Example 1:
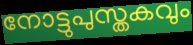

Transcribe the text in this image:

നോട്ടുപുസ്തകവും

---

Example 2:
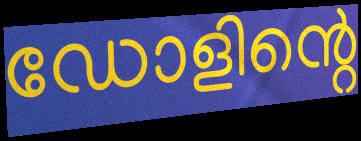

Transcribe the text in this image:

ഡോളിന്റെ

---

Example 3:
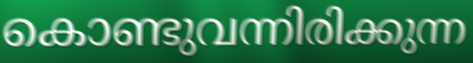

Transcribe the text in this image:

കൊണ്ടുവന്നിരിക്കുന്ന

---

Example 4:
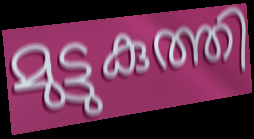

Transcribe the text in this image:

മുട്ടുകുത്തി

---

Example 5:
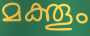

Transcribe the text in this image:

മക്തൂം